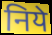
निये